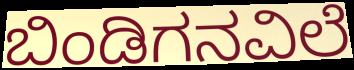
ಬಿಂಡಿಗನವಿಲೆ